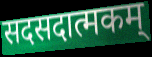
सदसदात्मकम्